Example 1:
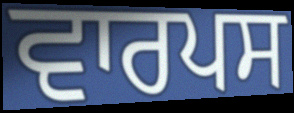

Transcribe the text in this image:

ਵਾਰਪਸ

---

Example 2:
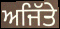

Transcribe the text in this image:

ਅਜਿੱਤੇ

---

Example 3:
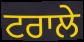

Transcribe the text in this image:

ਟਰਾਲੇ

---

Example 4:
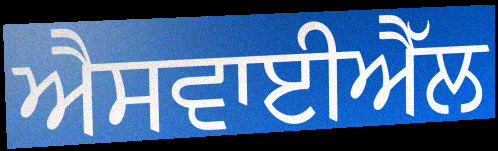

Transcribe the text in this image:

ਐਸਵਾਈਐੱਲ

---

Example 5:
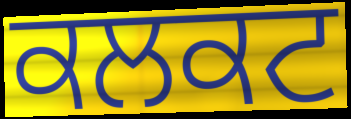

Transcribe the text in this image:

ਕਲਕਟ